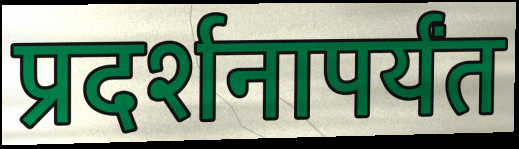
प्रदर्शनापर्यंत